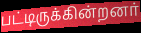
பட்டிருக்கின்றனர்